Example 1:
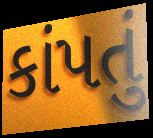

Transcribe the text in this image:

કાંપતું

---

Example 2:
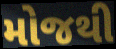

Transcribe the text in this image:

મોજથી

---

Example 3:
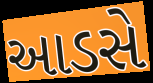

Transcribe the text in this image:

આડસે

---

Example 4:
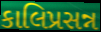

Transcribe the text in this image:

કાલિપ્રસન્ન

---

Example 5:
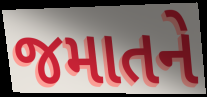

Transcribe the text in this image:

જમાતને